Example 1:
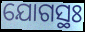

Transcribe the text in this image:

ଯୋଗସ୍ଥଃ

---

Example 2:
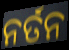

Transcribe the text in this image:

ନର୍ତନ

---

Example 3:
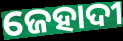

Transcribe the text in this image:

ଜେହାଦୀ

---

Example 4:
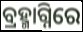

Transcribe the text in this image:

ବ୍ରହ୍ମାଗ୍ନିରେ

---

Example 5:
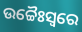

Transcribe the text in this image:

ଉଚ୍ଚୈଃସ୍ୱରେ